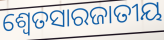
ଶ୍ଵେତସାରଜାତୀୟ